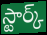
స్టార్క్